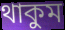
থাকুম